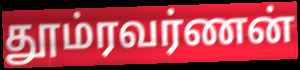
தூம்ரவர்ணன்